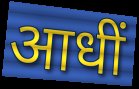
आधीं